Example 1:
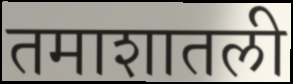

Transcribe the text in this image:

तमाशातली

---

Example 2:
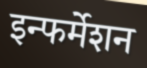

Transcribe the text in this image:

इन्फर्मेशन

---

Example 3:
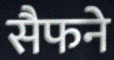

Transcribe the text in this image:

सैफने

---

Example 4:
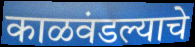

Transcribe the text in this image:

काळवंडल्याचे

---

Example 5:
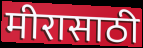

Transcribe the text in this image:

मीरासाठी